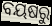
ବୟଷରୁ